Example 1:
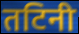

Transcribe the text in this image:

तटिनी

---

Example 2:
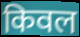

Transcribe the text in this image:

किवल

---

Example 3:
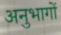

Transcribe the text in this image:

अनुभागों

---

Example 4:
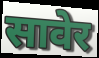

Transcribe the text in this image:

सावेर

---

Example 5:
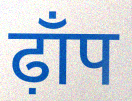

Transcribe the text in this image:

ढ़ाँप